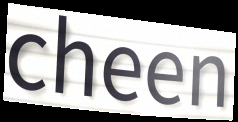
cheen